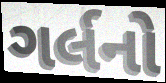
ગર્લનો